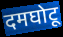
दमघोटू